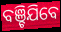
ବଞ୍ଚିଯିବେ